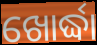
ଖୋର୍ଦ୍ଧା